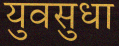
युवसुधा